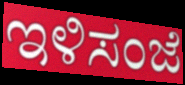
ಇಳಿಸಂಜೆ